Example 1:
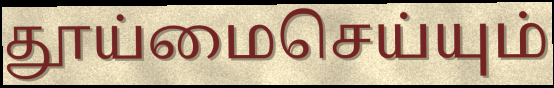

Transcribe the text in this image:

தூய்மைசெய்யும்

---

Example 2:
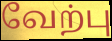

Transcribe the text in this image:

வேற்பு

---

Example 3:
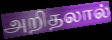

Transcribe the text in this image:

அறிதலால்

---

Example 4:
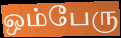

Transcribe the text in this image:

ஒம்பேரு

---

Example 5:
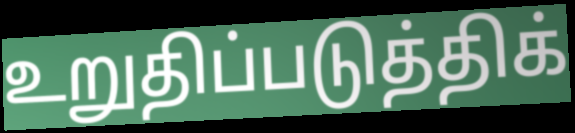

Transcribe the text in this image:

உறுதிப்படுத்திக்